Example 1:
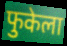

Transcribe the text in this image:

फुकेला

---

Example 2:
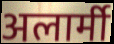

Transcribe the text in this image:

अलार्मी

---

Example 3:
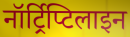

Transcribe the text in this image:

नॉर्ट्रिप्टिलाइन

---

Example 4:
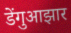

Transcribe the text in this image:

डेंगुआझार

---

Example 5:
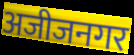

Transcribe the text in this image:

अजीजनगर